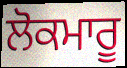
ਲੋਕਮਾਰੂ